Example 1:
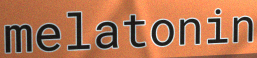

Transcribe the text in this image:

melatonin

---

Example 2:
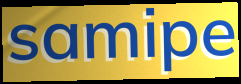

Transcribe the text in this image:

samipe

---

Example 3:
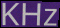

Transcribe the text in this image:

KHz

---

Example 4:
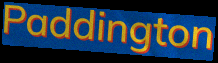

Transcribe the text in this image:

Paddington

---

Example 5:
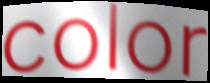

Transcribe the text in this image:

color